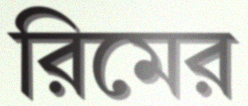
রিমের